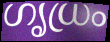
ഗൃധ്രം